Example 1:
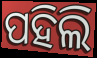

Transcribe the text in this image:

ପହିଲି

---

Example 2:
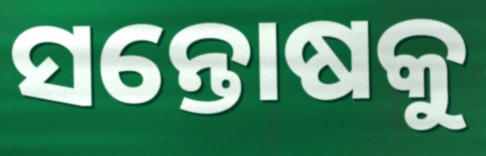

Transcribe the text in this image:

ସନ୍ତୋଷକୁ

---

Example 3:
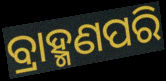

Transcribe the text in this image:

ବ୍ରାହ୍ମଣପରି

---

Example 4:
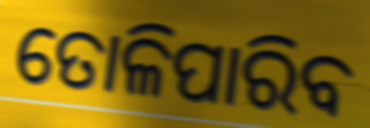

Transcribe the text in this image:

ତୋଳିପାରିବ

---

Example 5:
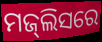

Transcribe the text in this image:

ମଜ୍‍ଲିସରେ